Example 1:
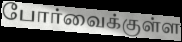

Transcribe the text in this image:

போர்வைக்குள்ள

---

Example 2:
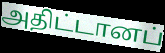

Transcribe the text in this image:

அதிட்டானப்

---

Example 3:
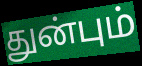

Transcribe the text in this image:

துன்பும்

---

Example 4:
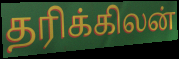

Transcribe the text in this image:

தரிக்கிலன்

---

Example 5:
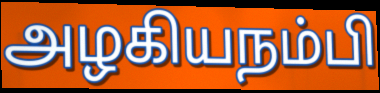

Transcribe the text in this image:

அழகியநம்பி